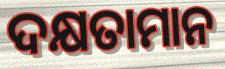
ଦକ୍ଷତାମାନ